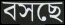
বসছে